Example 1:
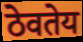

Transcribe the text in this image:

ठेवतेय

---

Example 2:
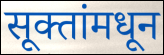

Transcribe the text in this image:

सूक्तांमधून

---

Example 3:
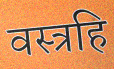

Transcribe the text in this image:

वस्त्रहि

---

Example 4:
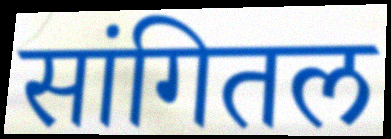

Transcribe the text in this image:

सांगितल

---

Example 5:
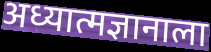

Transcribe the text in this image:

अध्यात्मज्ञानाला